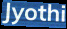
Jyothi